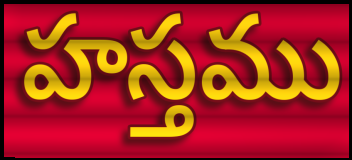
హస్తము